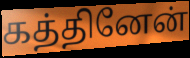
கத்தினேன்